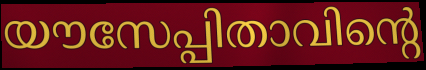
യൗസേപ്പിതാവിന്റെ